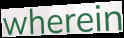
wherein